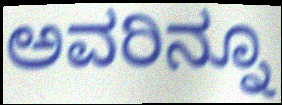
ಅವರಿನ್ನೂ